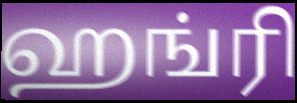
ஹங்ரி